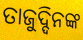
ତାଜୁଦ୍ଦିନଙ୍କ